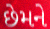
છેમને